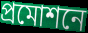
প্রমোশনে